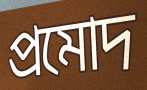
প্রমোদ